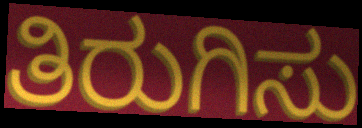
ತಿರುಗಿಸು